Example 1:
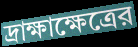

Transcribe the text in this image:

দ্রাক্ষাক্ষেত্রের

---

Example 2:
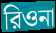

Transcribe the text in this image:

রিওনা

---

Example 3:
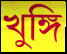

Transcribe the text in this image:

খুঙ্গি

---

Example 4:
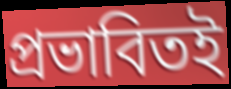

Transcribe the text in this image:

প্রভাবিতই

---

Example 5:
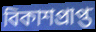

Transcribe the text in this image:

বিকাশপ্রাপ্ত